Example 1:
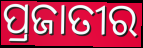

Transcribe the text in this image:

ପ୍ରଜାତୀର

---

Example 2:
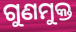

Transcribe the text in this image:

ଗୁଣମୁକ୍ତ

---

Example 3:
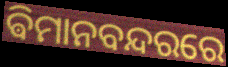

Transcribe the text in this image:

ଵିମାନବନ୍ଦରରେ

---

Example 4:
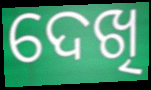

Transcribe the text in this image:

ଦେଖି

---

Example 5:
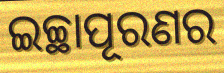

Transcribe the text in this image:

ଇଚ୍ଛାପୂରଣର